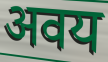
अवय